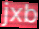
jxb